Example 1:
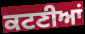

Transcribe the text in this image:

ਕਟਣੀਆਂ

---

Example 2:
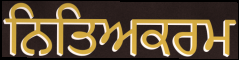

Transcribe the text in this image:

ਨਿਤਿਅਕਰਮ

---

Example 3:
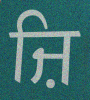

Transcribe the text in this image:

ਜ਼ਿ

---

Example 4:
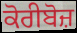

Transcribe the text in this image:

ਕੋਰੀਬੋਜ਼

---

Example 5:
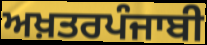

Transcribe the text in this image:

ਅਖ਼ਤਰਪੰਜਾਬੀ